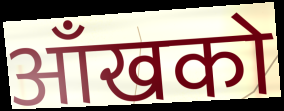
आँखको